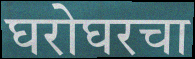
घरोघरचा